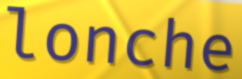
lonche